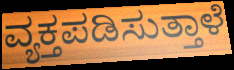
ವ್ಯಕ್ತಪಡಿಸುತ್ತಾಳೆ